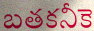
బతకనీకె